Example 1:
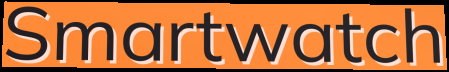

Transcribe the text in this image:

Smartwatch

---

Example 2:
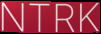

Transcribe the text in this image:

NTRK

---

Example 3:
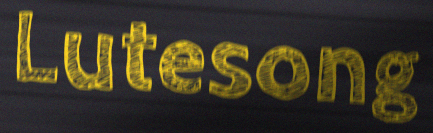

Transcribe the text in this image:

Lutesong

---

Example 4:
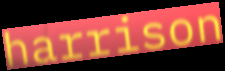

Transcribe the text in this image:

harrison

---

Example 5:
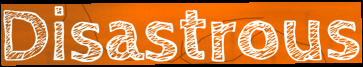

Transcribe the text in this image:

Disastrous